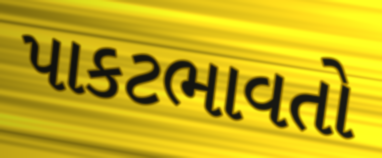
પાકટભાવતો